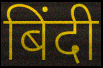
बिंदी